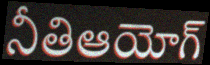
నీతిఆయోగ్